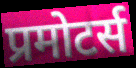
प्रमोटर्स